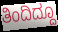
ತಿಂದಿದ್ದೂ